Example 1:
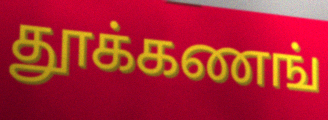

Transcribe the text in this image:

தூக்கணங்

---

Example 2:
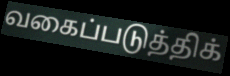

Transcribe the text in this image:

வகைப்படுத்திக்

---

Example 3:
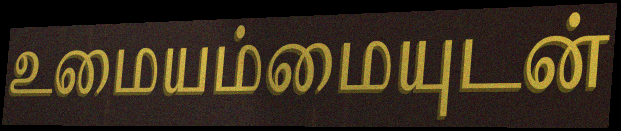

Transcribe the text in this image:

உமையம்மையுடன்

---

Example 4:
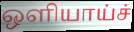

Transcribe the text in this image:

ஒளியாய்ச்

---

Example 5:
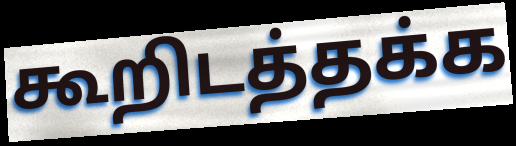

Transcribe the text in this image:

கூறிடத்தக்க